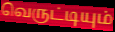
வெருட்டியும்